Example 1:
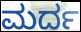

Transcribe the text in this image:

ಮರ್ದ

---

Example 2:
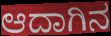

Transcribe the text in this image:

ಆದಾಗಿನ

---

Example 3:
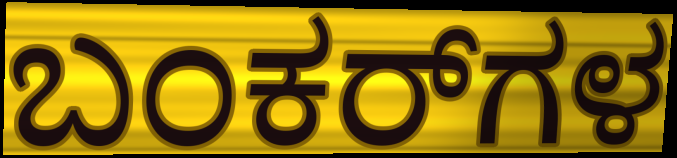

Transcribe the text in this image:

ಬಂಕರ್‌ಗಳ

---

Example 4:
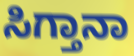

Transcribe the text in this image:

ಸಿಗ್ತಾನಾ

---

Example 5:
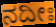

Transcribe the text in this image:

ನದೀಃ